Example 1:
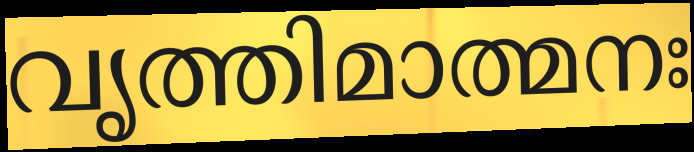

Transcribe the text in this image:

വൃത്തിമാത്മനഃ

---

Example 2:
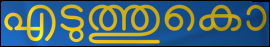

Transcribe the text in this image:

എടുത്തുകൊ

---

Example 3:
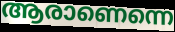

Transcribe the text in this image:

ആരാണെന്നെ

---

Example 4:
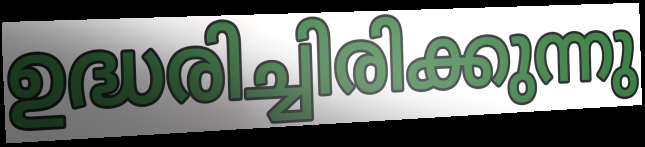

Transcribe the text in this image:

ഉദ്ധരിച്ചിരിക്കുന്നു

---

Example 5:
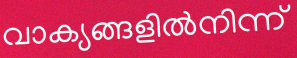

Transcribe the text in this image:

വാക്യങ്ങളിൽനിന്ന്